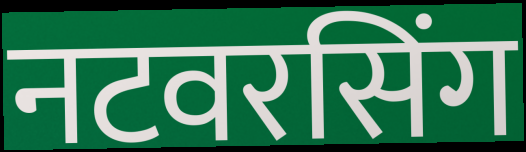
नटवरसिंग